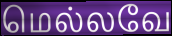
மெல்லவே